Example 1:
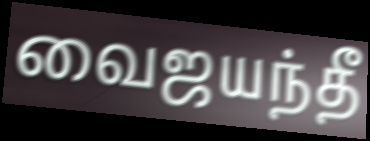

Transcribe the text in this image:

வைஜயந்தீ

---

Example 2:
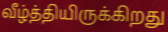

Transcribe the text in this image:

வீழ்த்தியிருக்கிறது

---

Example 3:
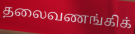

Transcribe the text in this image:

தலைவணங்கிக்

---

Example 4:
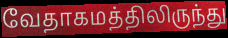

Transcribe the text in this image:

வேதாகமத்திலிருந்து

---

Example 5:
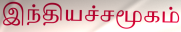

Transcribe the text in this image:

இந்தியச்சமூகம்